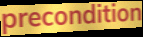
precondition